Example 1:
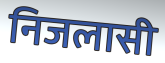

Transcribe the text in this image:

निजलासी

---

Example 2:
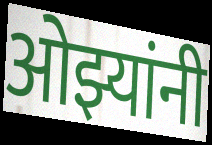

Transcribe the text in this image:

ओझ्यांनी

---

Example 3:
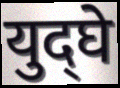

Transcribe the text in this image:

युद्घे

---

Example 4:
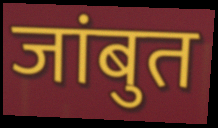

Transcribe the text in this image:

जांबुत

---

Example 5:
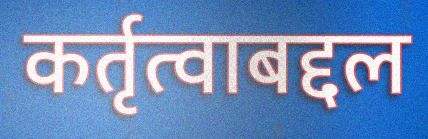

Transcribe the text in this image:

कर्तृत्वाबद्दल